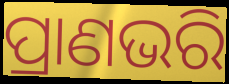
ପ୍ରାଣଭରି